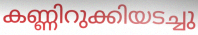
കണ്ണിറുക്കിയടച്ചു